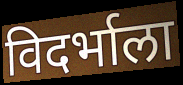
विदर्भाला